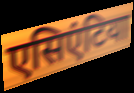
एसिएंटिया